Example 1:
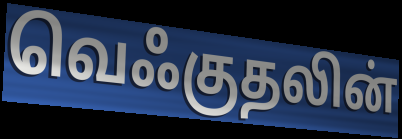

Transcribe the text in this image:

வெஃகுதலின்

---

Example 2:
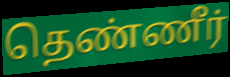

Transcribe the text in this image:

தெண்ணீர்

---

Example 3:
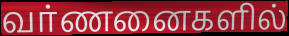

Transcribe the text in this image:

வர்ணனைகளில்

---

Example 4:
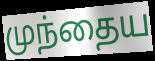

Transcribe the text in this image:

முந்தைய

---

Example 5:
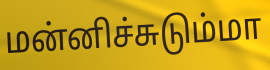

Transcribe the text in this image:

மன்னிச்சுடும்மா